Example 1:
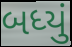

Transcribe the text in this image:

બધ્યું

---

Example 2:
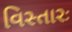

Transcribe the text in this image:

વિસ્તારઃ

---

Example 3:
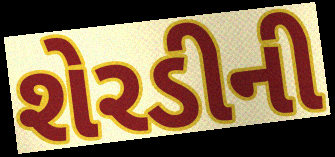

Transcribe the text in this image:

શેરડીની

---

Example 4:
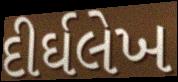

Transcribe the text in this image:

દીર્ઘલેખ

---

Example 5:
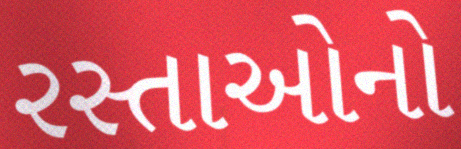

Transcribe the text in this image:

રસ્તાઓનો